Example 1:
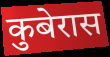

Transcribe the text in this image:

कुबेरास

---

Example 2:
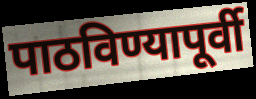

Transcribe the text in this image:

पाठविण्यापूर्वी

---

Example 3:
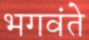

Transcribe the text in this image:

भगवंते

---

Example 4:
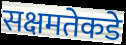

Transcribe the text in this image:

सक्षमतेकडे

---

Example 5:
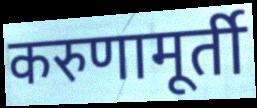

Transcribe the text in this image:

करुणामूर्ती